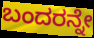
ಬಂದರನ್ನೇ